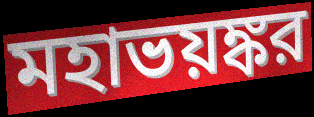
মহাভয়ঙ্কর